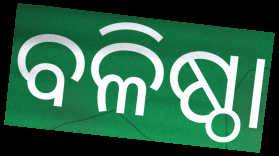
ବଳିଷ୍ଠା